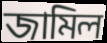
জামিল